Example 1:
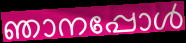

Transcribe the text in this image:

ഞാനപ്പോൾ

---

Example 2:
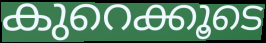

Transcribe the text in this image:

കുറെക്കൂടെ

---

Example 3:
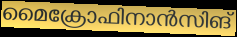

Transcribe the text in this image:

മൈക്രോഫിനാൻസിങ്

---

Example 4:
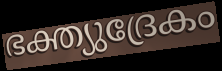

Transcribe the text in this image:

ഭക്ത്യുദ്രേകം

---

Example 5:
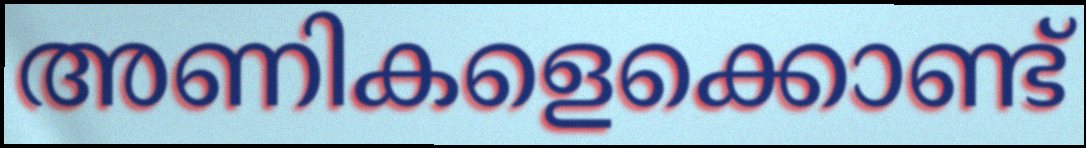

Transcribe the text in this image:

അണികളെക്കൊണ്ട്